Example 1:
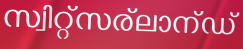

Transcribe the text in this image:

സ്വിറ്റ്സര്ലാന്ഡ്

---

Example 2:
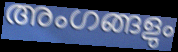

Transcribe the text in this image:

അംഗങ്ങളും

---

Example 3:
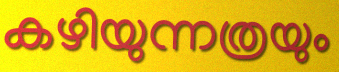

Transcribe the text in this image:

കഴിയുന്നത്രയും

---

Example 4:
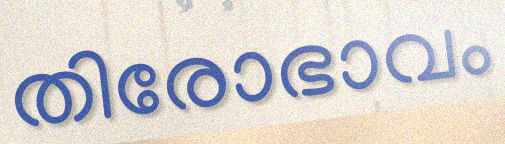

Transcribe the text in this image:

തിരോഭാവം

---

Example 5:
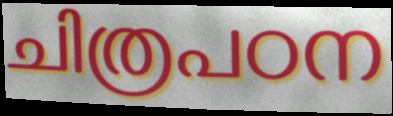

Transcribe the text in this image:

ചിത്രപഠന